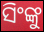
ସିଂଙ୍କୁ